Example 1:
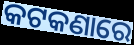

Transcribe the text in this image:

କଟକଣାରେ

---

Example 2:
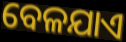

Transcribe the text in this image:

ବେଳଯାଏ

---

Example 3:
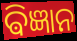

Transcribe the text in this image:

ଵିଜ୍ଞାନ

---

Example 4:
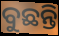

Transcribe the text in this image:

ବୁଛନ୍ତି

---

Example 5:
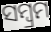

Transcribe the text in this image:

ସମ୍ବ୍ରମ